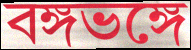
বঙ্গভঙ্গে